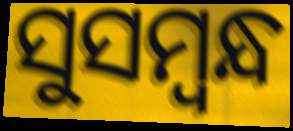
ସୁସମ୍ବନ୍ଧ